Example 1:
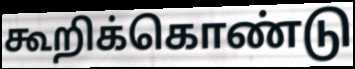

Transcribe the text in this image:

கூறிக்கொண்டு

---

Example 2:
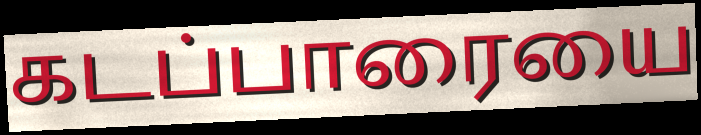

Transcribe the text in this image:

கடப்பாரையை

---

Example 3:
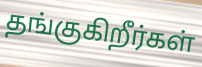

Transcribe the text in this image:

தங்குகிறீர்கள்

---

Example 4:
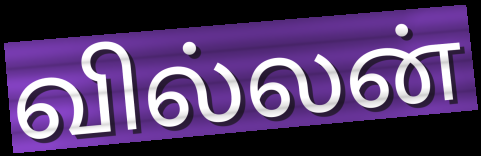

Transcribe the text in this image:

வில்லன்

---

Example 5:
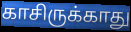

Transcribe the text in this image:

காசிருக்காது